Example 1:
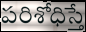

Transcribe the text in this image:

పరిశోధిస్తే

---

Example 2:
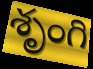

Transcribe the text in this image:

శృంగి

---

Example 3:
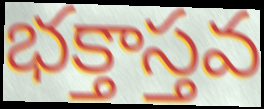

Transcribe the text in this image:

భక్తాస్తవ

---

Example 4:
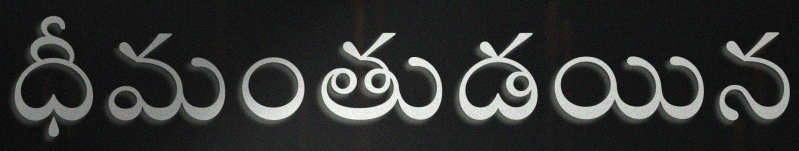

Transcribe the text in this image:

ధీమంతుడయిన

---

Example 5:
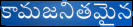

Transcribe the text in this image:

కామజనితమైన